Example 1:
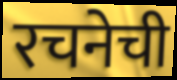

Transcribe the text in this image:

रचनेची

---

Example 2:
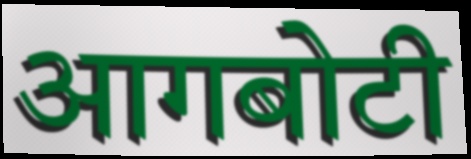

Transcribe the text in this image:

आगबोटी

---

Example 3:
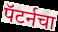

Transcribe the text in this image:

पॅटर्नचा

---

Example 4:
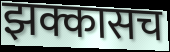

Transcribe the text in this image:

झक्कासच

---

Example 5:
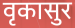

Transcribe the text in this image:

वृकासुर